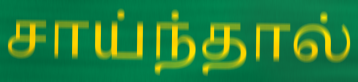
சாய்ந்தால்